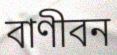
বাণীবন